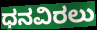
ಧನವಿರಲು